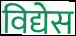
विद्येस